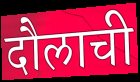
दौलाची